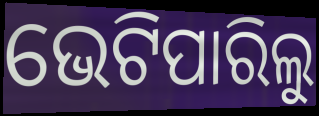
ଭେଟିପାରିଲୁ